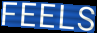
FEELS